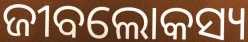
ଜୀବଲୋକସ୍ୟ